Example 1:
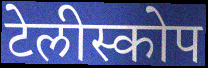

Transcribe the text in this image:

टेलीस्कोप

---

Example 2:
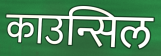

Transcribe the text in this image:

काउन्सिल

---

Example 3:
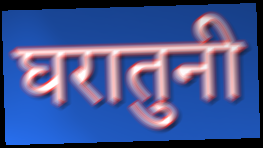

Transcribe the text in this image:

घरातुनी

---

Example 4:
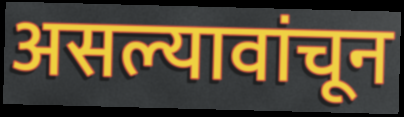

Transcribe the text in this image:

असल्यावांचून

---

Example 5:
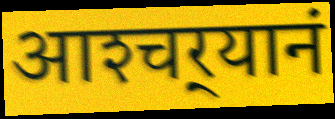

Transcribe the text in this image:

आश्चर्यानं